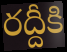
రద్దీకి